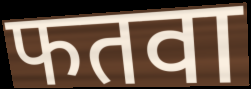
फतवा